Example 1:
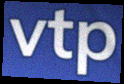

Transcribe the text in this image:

vtp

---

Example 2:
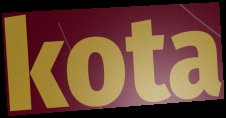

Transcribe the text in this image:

kota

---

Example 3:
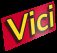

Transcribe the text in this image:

Vici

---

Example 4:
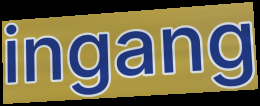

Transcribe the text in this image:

ingang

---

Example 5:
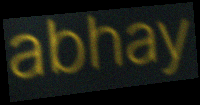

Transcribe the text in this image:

abhay